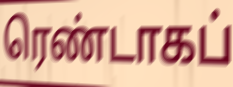
ரெண்டாகப்